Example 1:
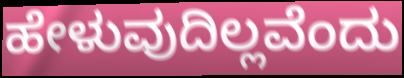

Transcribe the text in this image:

ಹೇಳುವುದಿಲ್ಲವೆಂದು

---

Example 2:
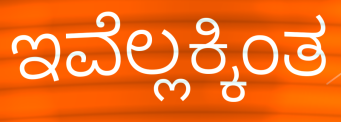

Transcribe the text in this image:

ಇವೆಲ್ಲಕ್ಕಿಂತ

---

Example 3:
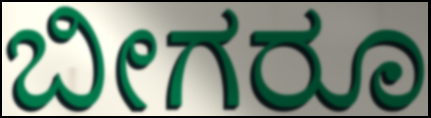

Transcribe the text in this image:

ಬೀಗರೂ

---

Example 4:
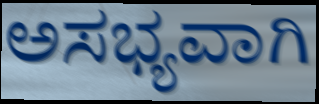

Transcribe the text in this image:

ಅಸಭ್ಯವಾಗಿ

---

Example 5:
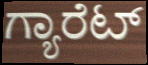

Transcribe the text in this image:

ಗ್ಯಾರೆಟ್